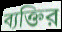
ব্যক্তির